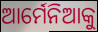
ଆର୍ମେନିଆକୁ